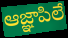
ఆజ్ఞాపిలే